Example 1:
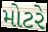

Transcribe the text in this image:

મોટરે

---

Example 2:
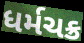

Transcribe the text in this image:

ધર્મચક્ર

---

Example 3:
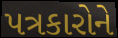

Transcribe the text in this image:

પત્રકારોને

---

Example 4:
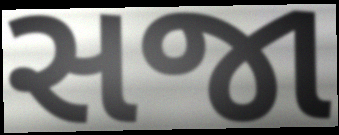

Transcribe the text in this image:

સજા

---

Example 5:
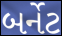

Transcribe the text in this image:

બર્નેટ